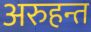
अरुहन्त